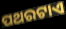
ପଥରଟାଏ